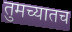
तुमच्यातच